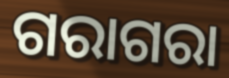
ଗରାଗରା